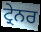
ਟ੍ਰੇਨਰ